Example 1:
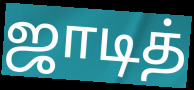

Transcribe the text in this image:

ஜாடித்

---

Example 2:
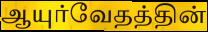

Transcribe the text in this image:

ஆயுர்வேதத்தின்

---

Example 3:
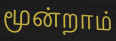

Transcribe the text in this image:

மூன்றாம்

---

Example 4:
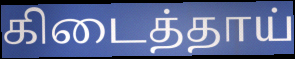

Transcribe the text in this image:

கிடைத்தாய்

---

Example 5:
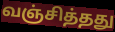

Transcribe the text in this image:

வஞ்சித்தது